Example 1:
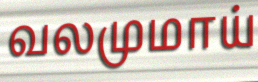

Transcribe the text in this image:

வலமுமாய்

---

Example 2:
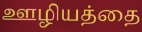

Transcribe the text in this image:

ஊழியத்தை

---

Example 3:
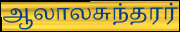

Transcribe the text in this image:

ஆலாலசுந்தரர்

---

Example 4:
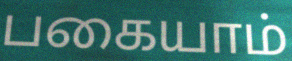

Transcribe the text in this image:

பகையாம்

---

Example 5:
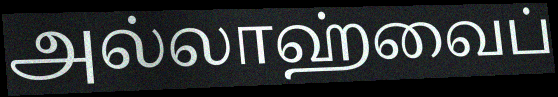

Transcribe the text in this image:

அல்லாஹ்வைப்